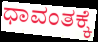
ಧಾವಂತಕ್ಕೆ